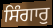
ਸਿੰਗਾਰੁ